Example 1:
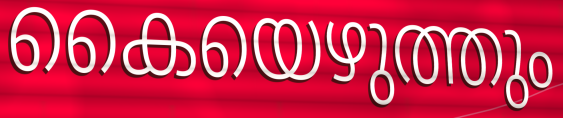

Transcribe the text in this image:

കൈയെഴുത്തും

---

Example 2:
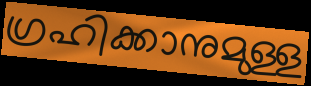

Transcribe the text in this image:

ഗ്രഹിക്കാനുമുള്ള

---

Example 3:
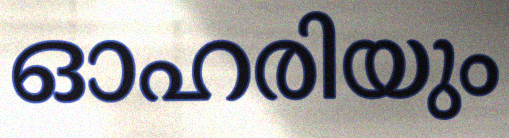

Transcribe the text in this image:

ഓഹരിയും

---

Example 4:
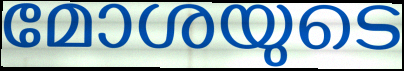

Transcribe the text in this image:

മോശയുടെ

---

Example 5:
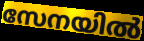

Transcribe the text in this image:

സേനയിൽ